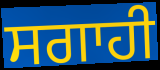
ਸਗਾਹੀ